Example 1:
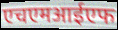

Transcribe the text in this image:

एचएमआईएफ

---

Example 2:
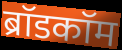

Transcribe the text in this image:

ब्रॉडकॉम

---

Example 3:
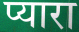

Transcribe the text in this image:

प्‍यारा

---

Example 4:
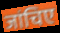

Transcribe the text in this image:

जांचिए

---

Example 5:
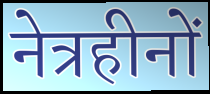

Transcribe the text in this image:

नेत्रहीनों